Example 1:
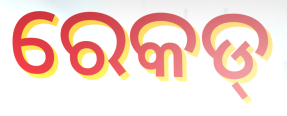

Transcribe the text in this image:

ରେକଡ୍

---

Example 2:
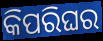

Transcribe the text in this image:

କିପରିଘର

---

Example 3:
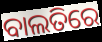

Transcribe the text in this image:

ବାଲତିରେ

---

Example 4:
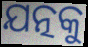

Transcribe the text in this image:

ଯତ୍ନକୁ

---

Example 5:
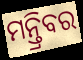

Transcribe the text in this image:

ମନ୍ତ୍ରିବର